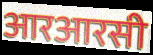
आरआरसी